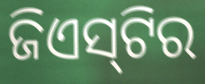
ଜିଏସ୍‌ଟିର